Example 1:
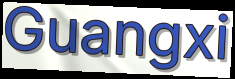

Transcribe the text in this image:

Guangxi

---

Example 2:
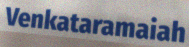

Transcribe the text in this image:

Venkataramaiah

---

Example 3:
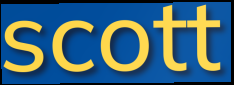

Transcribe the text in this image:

scott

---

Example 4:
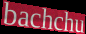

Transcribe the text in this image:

bachchu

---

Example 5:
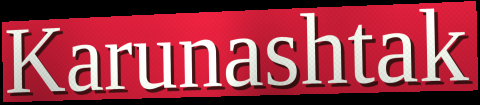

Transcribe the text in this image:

Karunashtak